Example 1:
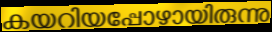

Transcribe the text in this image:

കയറിയപ്പോഴായിരുന്നു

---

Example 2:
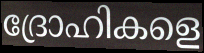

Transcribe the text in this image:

ദ്രോഹികളെ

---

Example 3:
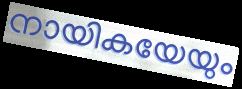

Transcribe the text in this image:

നായികയേയും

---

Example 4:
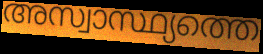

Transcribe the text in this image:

അസ്വാസ്ഥ്യത്തെ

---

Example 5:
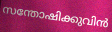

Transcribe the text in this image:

സന്തോഷിക്കുവിൻ